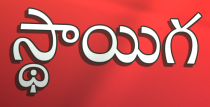
స్థాయిగ